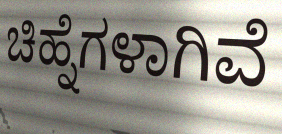
ಚಿಹ್ನೆಗಳಾಗಿವೆ